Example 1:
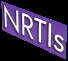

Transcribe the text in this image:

NRTIs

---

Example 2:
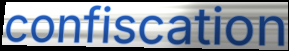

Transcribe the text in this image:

confiscation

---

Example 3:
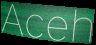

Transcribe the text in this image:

Aceh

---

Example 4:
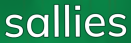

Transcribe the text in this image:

sallies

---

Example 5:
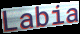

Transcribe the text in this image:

Labia